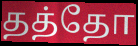
தத்தோ